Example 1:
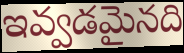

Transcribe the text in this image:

ఇవ్వడమైనది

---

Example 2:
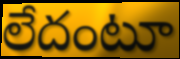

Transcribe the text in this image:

లేదంటూ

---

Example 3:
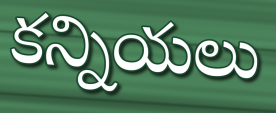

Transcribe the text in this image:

కన్నియలు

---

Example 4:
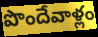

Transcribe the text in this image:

పొందేవాళ్లం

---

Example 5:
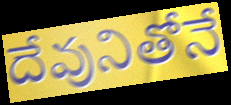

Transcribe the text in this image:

దేవునితోనే